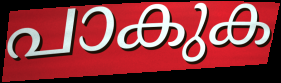
പാകുക